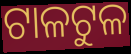
ଟାଳଟୁଳ